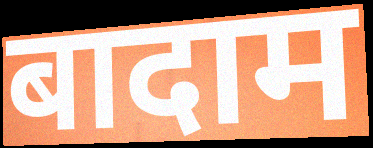
बादाम